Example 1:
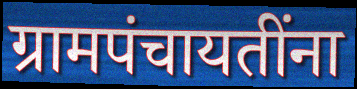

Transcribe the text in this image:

ग्रामपंचायतींना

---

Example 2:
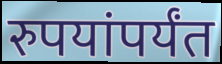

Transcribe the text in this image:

रुपयांपर्यंत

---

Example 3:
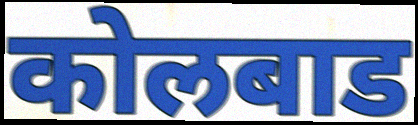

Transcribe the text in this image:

कोलबाड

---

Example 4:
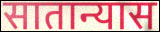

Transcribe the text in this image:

सातान्यास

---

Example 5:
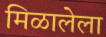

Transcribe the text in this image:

मिळालेला